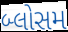
બ્લોસમ